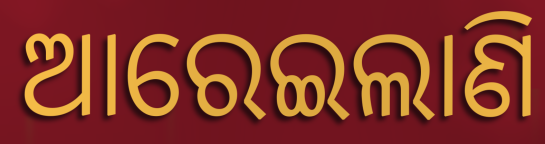
ଆରେଇଲାଣି